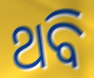
ଥବି